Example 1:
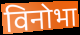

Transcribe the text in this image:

विनोभा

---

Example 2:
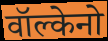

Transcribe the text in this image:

वॉल्केनो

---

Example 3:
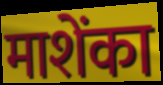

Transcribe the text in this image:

माशेंका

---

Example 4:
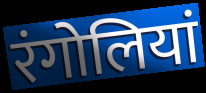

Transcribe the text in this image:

रंगोलियां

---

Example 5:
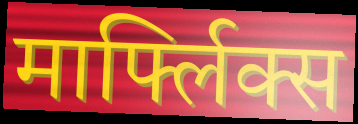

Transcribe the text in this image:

मार्फ्लिक्स